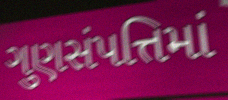
ગુણસંપત્તિમાં